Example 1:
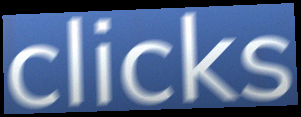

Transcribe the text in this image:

clicks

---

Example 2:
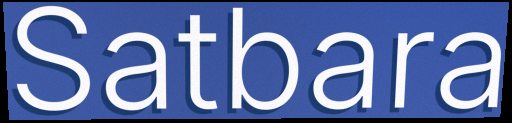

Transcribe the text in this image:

Satbara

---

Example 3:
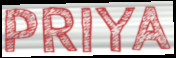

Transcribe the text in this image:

PRIYA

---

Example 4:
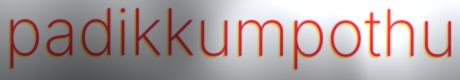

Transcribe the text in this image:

padikkumpothu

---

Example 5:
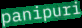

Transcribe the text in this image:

panipuri